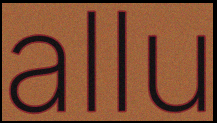
allu